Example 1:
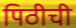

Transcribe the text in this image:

पिठीची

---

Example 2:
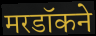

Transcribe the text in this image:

मरडॉकने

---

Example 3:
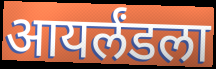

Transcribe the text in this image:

आयर्लंडला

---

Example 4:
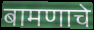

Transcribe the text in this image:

बामणाचे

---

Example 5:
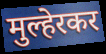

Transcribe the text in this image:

मुल्हेरकर